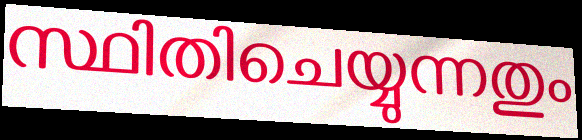
സ്ഥിതിചെയ്യുന്നതും